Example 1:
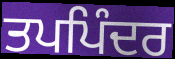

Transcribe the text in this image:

ਤਪਪਿੰਦਰ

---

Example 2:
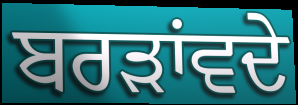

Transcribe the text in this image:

ਬਰੜਾਂਵਦੇ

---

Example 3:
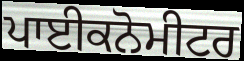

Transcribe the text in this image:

ਪਾਈਕਨੋਮੀਟਰ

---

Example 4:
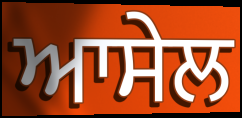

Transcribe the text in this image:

ਆਸੇਲ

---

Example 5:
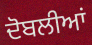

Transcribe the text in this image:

ਦੋਬਲੀਆਂ